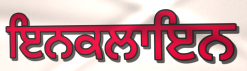
ਇਨਕਲਾਇਨ